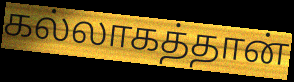
கல்லாகத்தான்